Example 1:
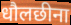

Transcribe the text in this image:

धौलछीना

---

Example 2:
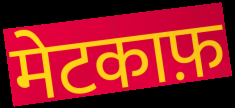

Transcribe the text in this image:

मेटकाफ़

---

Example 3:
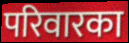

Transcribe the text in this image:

परिवारका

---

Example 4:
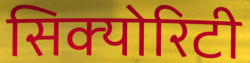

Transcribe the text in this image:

सिक्‍योरिटी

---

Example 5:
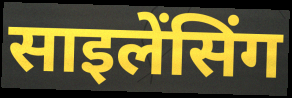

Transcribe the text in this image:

साइलेंसिंग